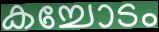
കച്ചോടം